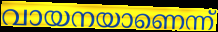
വായനയാണെന്ന്